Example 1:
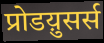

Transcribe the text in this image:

प्रोडय़ुसर्स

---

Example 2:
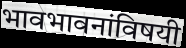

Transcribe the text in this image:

भावभावनांविषयी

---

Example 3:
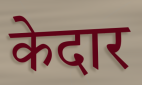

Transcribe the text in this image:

केदार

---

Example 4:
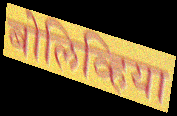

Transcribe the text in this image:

बोलिव्हिया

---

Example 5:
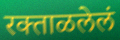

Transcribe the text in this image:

रक्ताळलेलं